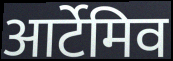
आर्टेमिव